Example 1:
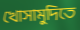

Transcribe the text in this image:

খোসামুদিতে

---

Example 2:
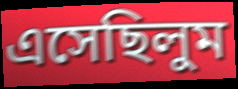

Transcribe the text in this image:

এসেছিলুম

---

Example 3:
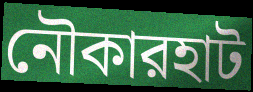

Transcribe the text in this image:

নৌকারহাট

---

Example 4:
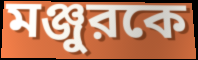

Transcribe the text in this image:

মঞ্জুরকে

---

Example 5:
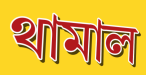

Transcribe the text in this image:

থামাল